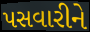
પસવારીને